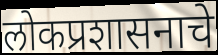
लोकप्रशासनाचे